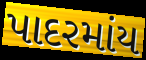
પાદરમાંય